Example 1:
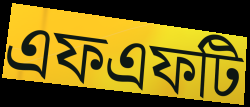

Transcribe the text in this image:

এফএফটি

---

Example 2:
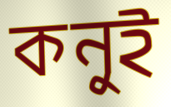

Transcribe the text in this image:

কনুই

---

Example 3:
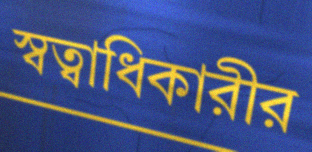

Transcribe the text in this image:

স্বত্বাধিকারীর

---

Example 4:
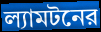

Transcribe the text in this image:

ল্যামটনের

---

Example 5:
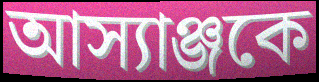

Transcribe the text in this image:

আস্যাঞ্জকে